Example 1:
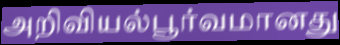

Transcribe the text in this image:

அறிவியல்பூர்வமானது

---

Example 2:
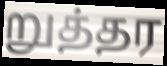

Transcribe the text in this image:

றுத்தர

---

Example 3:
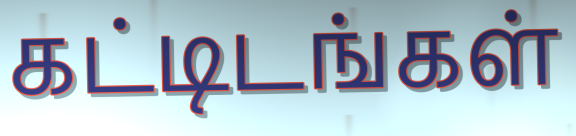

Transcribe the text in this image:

கட்டிடங்கள்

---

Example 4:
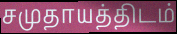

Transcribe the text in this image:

சமுதாயத்திடம்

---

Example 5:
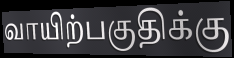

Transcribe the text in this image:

வாயிற்பகுதிக்கு